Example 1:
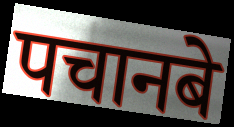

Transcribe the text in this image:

पचानबे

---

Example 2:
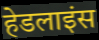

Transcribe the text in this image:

हेडलाइंस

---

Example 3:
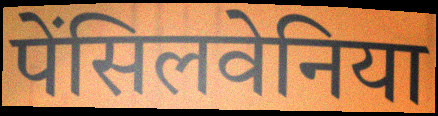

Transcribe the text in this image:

पेंसिलवेनिया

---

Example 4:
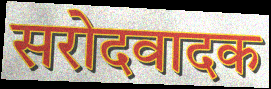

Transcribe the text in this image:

सरोदवादक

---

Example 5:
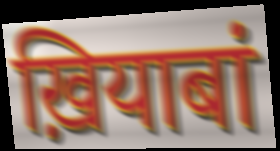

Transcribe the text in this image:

ख़ियाबां